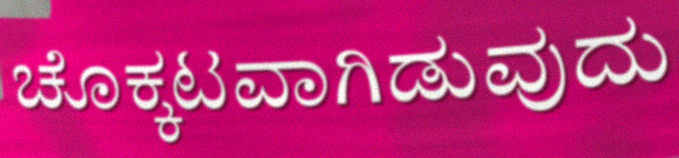
ಚೊಕ್ಕಟವಾಗಿಡುವುದು